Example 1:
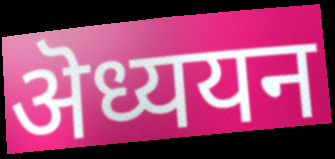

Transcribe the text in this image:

ऄध्ययन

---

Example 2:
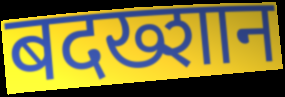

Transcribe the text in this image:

बदख्शान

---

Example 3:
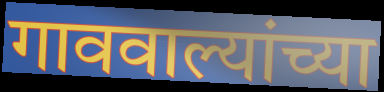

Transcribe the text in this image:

गाववाल्यांच्या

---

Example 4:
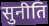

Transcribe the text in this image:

सुनीति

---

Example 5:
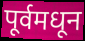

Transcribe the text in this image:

पूर्वमधून